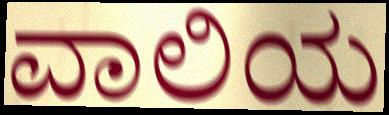
ವಾಲಿಯ